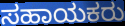
ಸಹಾಯಕರು